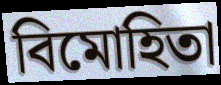
বিমোহিতা